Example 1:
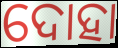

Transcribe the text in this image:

ଦୋହା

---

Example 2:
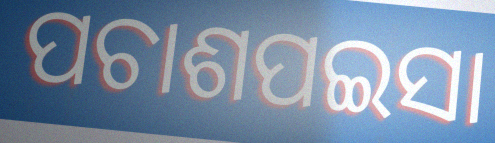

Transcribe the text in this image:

ପଚାଶପଇସା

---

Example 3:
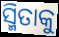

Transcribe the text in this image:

ସ୍ମିତାକୁ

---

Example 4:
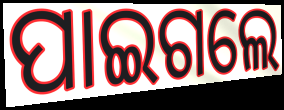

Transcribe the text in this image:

ପାଇଗଲେ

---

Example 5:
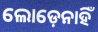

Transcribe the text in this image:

ଲୋଡ଼େନାହିଁ